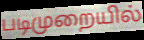
படிமுறையில்